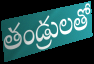
తండ్రులతో